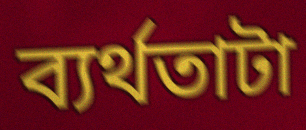
ব্যর্থতাটা